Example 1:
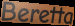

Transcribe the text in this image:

Beretta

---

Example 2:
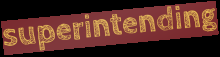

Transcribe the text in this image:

superintending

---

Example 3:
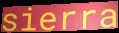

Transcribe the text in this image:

sierra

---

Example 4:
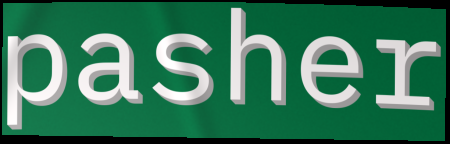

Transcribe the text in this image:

pasher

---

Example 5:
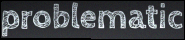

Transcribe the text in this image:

problematic